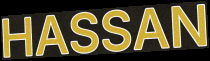
HASSAN